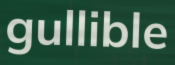
gullible